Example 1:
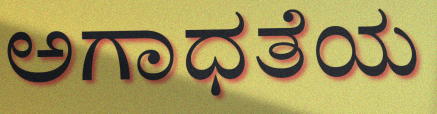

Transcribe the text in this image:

ಅಗಾಧತೆಯ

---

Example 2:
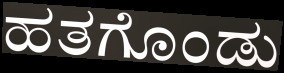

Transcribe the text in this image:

ಹತಗೊಂಡು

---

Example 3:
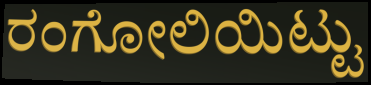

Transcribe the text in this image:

ರಂಗೋಲಿಯಿಟ್ಟು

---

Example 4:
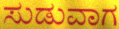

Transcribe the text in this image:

ಸುಡುವಾಗ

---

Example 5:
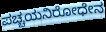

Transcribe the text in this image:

ಪಚ್ಚಯನಿರೋಧೇನ